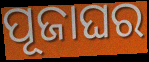
ପୂଜାଘର